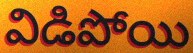
విడిపోయి